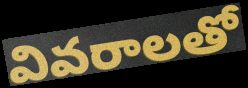
వివరాలతో